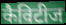
कैविटीज